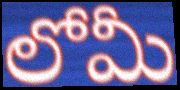
లోమీ